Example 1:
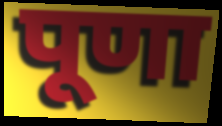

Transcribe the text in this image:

पूणा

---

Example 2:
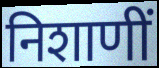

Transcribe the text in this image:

निशाणीं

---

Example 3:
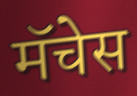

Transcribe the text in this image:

मॅचेस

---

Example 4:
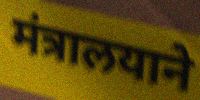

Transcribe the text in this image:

मंत्रालयाने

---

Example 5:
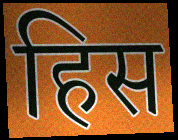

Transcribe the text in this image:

हिस